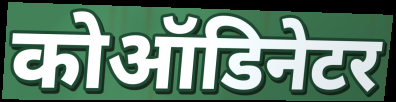
कोऑडिनेटर